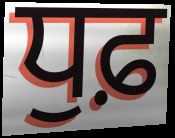
ਧੁਫ਼